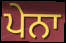
ਪੇਨਾ